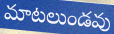
మాటలుండవు